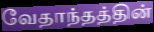
வேதாந்தத்தின்